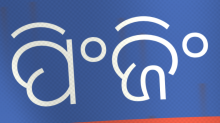
ପିଂଜିଂ